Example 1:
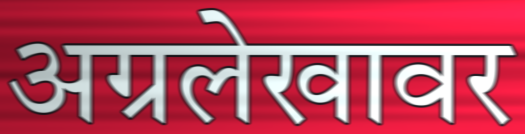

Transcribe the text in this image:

अग्रलेखावर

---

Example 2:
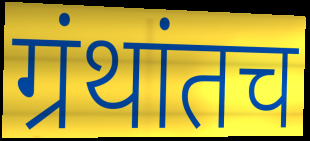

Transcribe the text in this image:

ग्रंथांतच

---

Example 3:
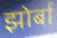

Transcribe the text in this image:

झोर्बा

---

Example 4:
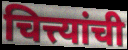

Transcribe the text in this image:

चित्त्यांची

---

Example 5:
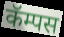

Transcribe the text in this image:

कॅम्पस